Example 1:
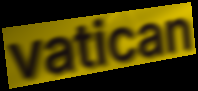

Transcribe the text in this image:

vatican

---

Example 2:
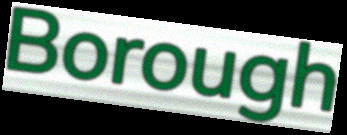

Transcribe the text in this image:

Borough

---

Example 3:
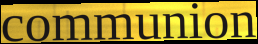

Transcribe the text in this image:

communion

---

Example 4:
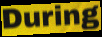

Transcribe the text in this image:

During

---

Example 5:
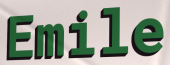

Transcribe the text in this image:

Emile